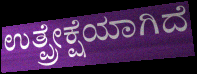
ಉತ್ಪ್ರೇಕ್ಷೆಯಾಗಿದೆ